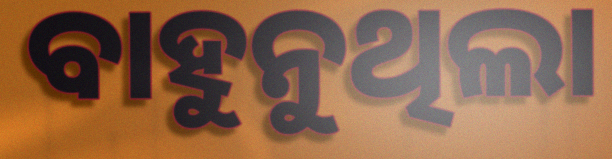
ବାହୁନୁଥିଲା